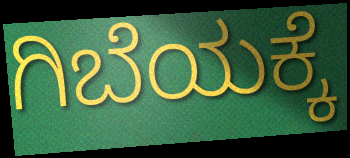
ಗಿಬೆಯಕ್ಕೆ